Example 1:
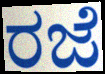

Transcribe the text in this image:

ರಜೆ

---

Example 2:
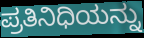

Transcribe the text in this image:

ಪ್ರತಿನಿಧಿಯನ್ನು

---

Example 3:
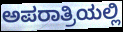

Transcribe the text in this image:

ಅಪರಾತ್ರಿಯಲ್ಲಿ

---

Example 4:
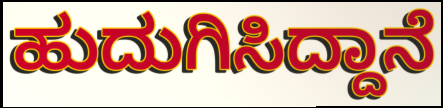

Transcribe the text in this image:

ಹುದುಗಿಸಿದ್ದಾನೆ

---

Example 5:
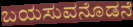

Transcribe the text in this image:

ಬಯಸುವನೊಡನೆ